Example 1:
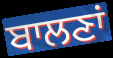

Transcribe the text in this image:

ਬਾਲਣਾਂ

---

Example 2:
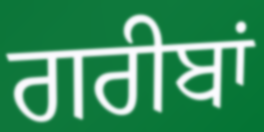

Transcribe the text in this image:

ਗਰੀਬਾਂ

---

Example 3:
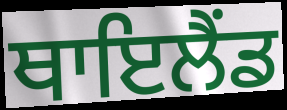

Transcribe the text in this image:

ਥਾਇਲੈਂਡ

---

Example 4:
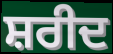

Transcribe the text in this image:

ਸ਼ਰੀਦ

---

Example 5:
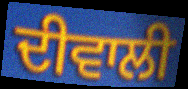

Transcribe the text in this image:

ਦੀਵਾਲੀ